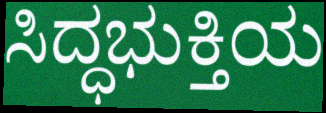
ಸಿದ್ಧಭುಕ್ತಿಯ